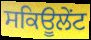
ਸਕਿਊਲੇਂਟ